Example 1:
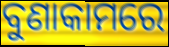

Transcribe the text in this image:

ବୁଣାକାମରେ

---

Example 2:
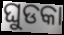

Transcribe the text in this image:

ଘୁଡକା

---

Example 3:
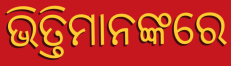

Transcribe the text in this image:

ଭିତ୍ତିମାନଙ୍କରେ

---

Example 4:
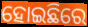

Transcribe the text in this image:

ହୋଇଛିରେ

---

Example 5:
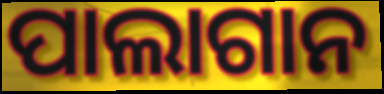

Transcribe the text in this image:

ପାଲାଗାନ